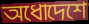
অধোদেশে